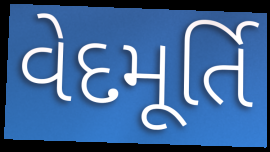
વેદમૂર્તિ